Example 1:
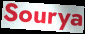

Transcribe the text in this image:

Sourya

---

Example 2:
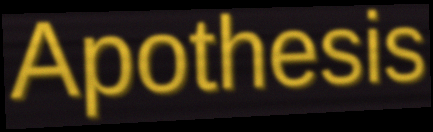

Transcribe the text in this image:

Apothesis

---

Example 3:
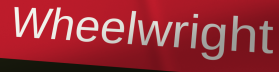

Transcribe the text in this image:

Wheelwright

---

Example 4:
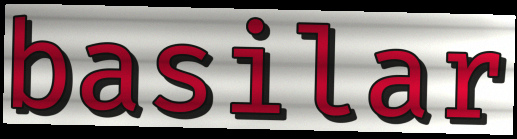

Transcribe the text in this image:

basilar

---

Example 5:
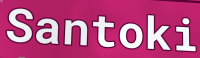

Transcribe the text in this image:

Santoki